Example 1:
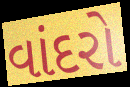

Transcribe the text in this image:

વાંદરો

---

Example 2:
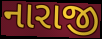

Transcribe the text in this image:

નારાજી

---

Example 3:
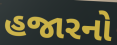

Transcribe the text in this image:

હજારનો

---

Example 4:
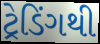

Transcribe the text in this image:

ટ્રેડિંગથી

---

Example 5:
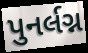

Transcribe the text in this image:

પુનર્લગ્ન